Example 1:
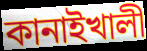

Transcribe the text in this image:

কানাইখালী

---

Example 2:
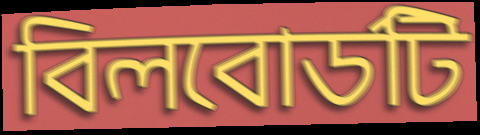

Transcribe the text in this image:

বিলবোর্ডটি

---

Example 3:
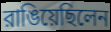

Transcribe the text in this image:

রাঙিয়েছিলেন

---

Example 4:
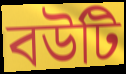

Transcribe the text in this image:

বউটি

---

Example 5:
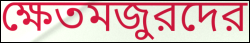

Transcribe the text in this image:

ক্ষেতমজুরদের